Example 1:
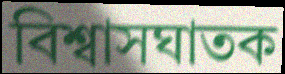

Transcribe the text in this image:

বিশ্বাসঘাতক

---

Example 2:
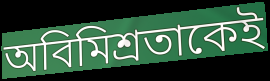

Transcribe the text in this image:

অবিমিশ্রতাকেই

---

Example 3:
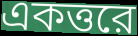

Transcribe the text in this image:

একত্তরে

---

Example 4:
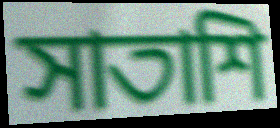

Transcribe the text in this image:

সাতাশি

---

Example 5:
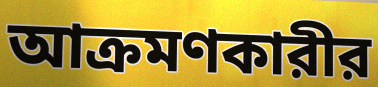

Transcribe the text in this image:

আক্রমণকারীর